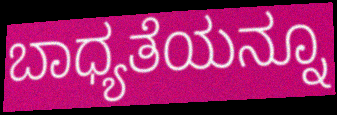
ಬಾಧ್ಯತೆಯನ್ನೂ